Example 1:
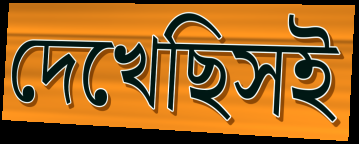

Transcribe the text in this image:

দেখেছিসই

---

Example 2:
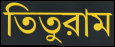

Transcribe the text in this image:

তিতুরাম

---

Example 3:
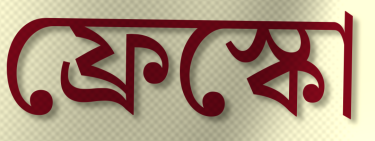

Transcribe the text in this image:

ফ্রেস্কো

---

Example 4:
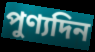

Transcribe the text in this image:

পুণ্যদিন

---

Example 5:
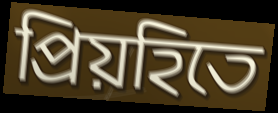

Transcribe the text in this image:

প্রিয়হিতে